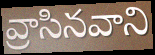
వ్రాసినవాని